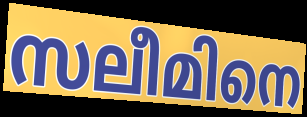
സലീമിനെ